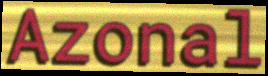
Azonal